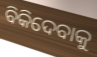
ବିକିଦେବାକୁ